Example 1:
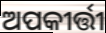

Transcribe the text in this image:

ଅପକୀର୍ତ୍ତୀ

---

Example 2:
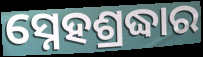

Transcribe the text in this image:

ସ୍ନେହଶ୍ରଦ୍ଧାର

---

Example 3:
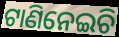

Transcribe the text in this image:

ଟାଣିନେଇଚି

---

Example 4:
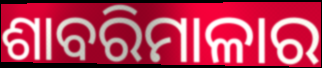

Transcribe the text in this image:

ଶାବରିମାଳାର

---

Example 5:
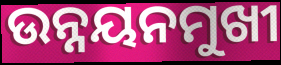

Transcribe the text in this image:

ଉନ୍ନୟନମୁଖୀ